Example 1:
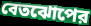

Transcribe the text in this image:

বেতঝোপের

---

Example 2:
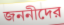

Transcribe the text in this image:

জননীদের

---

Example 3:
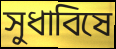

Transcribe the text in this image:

সুধাবিষে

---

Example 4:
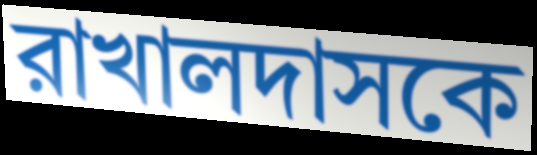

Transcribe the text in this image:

রাখালদাসকে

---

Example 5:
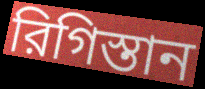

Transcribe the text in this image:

রিগিস্তান